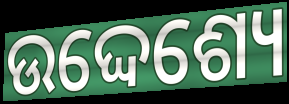
ଉଦ୍ଦେଶ୍ୟେ